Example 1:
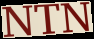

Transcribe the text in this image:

NTN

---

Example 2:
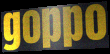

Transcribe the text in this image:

goppo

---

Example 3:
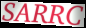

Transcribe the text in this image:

SARRC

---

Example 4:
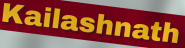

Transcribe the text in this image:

Kailashnath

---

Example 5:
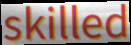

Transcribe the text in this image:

skilled